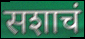
सशाचं